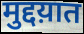
मुद्दय़ात